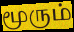
மூரும்